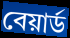
বেয়ার্ড